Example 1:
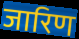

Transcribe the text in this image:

जारिण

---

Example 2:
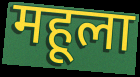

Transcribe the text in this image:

महूला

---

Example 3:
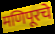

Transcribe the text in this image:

मणिपूरचे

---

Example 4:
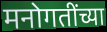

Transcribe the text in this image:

मनोगतींच्या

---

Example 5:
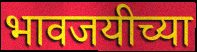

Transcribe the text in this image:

भावजयीच्या